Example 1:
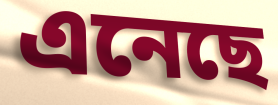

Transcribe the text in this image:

এনেছে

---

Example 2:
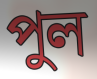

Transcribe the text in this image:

পুল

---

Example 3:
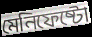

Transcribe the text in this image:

মেনিফেষ্টো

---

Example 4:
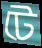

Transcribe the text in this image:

টে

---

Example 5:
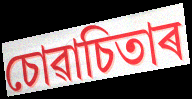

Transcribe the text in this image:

চোৱাচিতাৰ